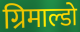
ग्रिमाल्डो